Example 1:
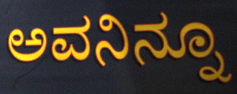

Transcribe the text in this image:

ಅವನಿನ್ನೂ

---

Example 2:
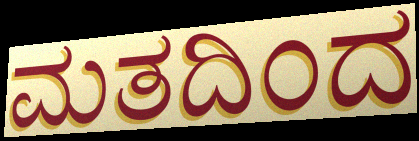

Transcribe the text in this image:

ಮತದಿಂದ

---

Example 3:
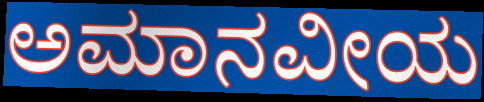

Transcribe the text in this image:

ಅಮಾನವೀಯ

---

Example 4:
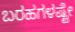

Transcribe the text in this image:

ಬರಹಗಳಷ್ಟೇ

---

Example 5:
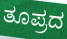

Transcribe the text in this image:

ತೂಪ್ರದ